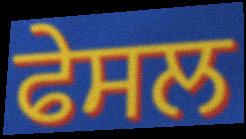
ਫੇਸਲ